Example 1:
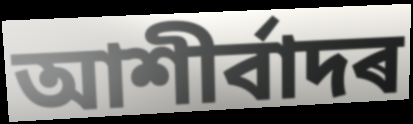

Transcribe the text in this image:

আশীৰ্বাদৰ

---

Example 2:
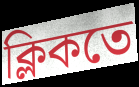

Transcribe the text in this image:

ক্লিকতে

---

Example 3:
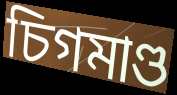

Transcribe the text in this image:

চিগমাণ্ড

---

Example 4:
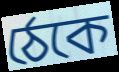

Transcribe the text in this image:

ঠেকে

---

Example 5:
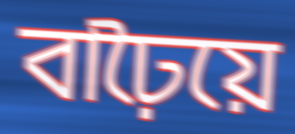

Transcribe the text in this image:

বাঢ়ৈয়ে